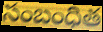
సంబంధిత